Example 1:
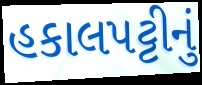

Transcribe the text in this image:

હકાલપટ્ટીનું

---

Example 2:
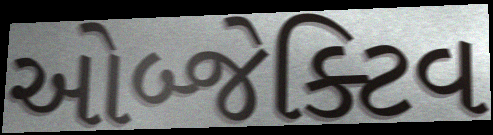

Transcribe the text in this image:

ઓબ્જેક્ટિવ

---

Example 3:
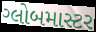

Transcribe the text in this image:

ગ્લોબમાસ્ટર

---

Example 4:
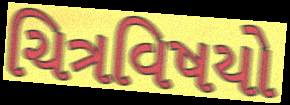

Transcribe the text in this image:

ચિત્રવિષયો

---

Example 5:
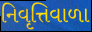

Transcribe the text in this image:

નિવૃત્તિવાળા